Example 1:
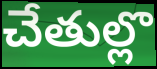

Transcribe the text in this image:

చేతుల్లొ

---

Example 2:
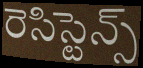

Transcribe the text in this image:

రెసిస్టెన్స్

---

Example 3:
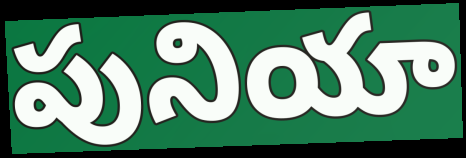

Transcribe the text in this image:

పునియా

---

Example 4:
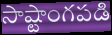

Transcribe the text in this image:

సాష్టాంగపడి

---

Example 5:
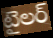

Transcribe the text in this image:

టైలర్